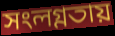
সংলগ্নতায়